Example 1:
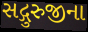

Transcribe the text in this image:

સદ્ગુરુજીના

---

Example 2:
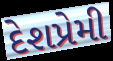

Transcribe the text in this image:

દેશપ્રેમી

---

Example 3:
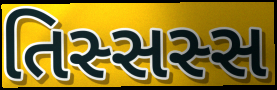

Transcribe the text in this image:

તિસ્સસ્સ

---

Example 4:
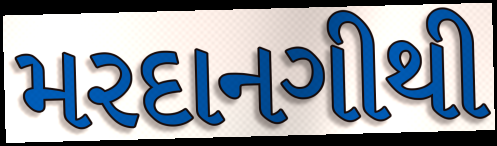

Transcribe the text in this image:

મરદાનગીથી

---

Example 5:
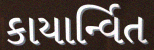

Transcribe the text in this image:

કાયાર્ન્વિત